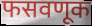
फसवणूक